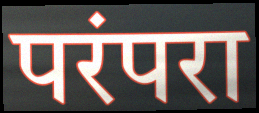
परंपरा